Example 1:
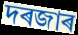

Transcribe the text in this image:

দৰজাৰ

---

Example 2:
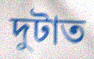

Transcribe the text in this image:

দুটাত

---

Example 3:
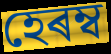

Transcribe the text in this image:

হেৰম্ব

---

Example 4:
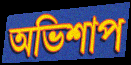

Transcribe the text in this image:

অভিশাপ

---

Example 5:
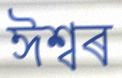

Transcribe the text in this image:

ঈশ্বৰ